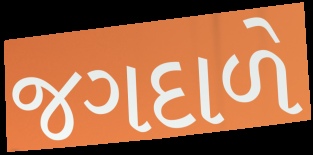
જગદાળે